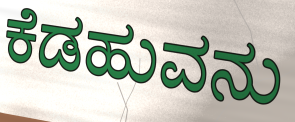
ಕೆಡಹುವನು